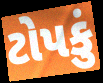
ટોપકું